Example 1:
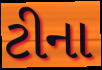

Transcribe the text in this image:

ટીના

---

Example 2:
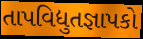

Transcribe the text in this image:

તાપવિદ્યુતજ્ઞાપકો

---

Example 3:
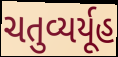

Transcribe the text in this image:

ચતુવ્યર્યૂહ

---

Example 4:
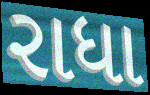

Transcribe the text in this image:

રાધા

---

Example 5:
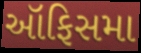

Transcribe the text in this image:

ઑફિસમા